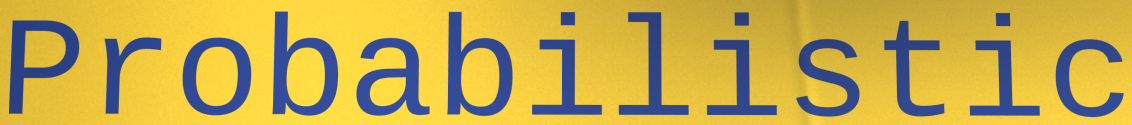
Probabilistic